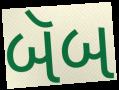
બૅબ